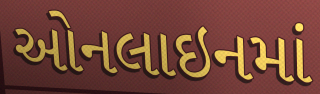
ઓનલાઇનમાં